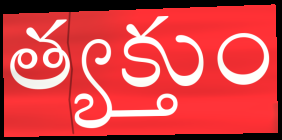
త్యక్తుం